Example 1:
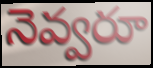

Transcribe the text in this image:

నెవ్వరూ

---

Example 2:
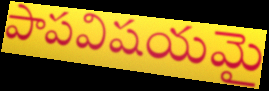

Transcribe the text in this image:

పాపవిషయమై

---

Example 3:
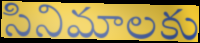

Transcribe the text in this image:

సినిమాలకు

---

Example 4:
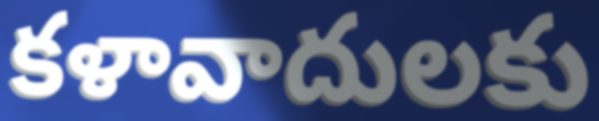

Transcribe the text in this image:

కళావాదులకు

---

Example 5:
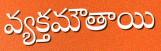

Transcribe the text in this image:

వ్యక్తమౌతాయి